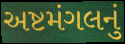
અષ્ટમંગલનું